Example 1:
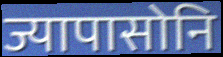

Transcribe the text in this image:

ज्यापासोनि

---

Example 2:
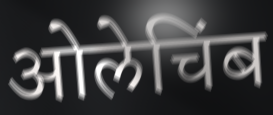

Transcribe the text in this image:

ओलेचिंब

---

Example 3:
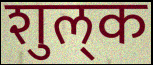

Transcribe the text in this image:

शुल्क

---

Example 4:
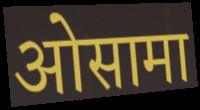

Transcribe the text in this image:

ओसामा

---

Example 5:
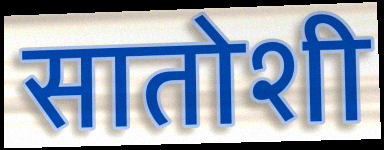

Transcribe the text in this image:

सातोशी